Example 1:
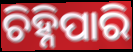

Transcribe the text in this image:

ଚିହ୍ନିପାରି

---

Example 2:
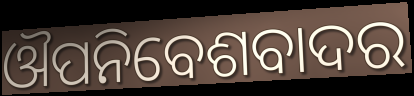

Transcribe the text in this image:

ଔପନିବେଶବାଦର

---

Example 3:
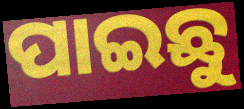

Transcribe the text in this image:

ପାଇଛୁ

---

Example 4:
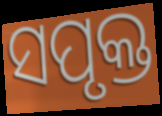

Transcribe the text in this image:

ସପୃକ୍ତ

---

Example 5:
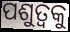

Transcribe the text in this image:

ପଶୁତ୍ୱକୁ